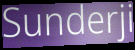
Sunderji